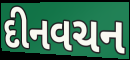
દીનવચન